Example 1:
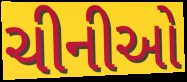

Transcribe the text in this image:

ચીનીઓ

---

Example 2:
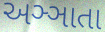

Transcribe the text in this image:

અઞ્ઞાતા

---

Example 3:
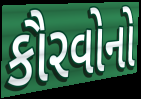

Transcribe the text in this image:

કૌરવોનો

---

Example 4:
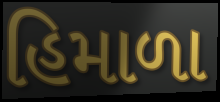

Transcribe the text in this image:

હિમાળા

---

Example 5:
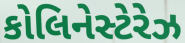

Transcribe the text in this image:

કોલિનેસ્ટેરેઝ